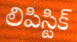
లిపిస్టిక్